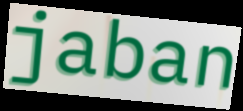
jaban